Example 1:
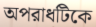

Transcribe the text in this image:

অপরাধটিকে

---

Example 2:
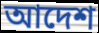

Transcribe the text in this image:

আদেশ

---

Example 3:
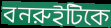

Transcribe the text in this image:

বনরুইটিকে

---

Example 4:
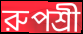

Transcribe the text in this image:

রুপশ্রী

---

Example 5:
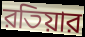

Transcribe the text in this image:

রতিয়ার